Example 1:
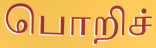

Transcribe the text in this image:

பொறிச்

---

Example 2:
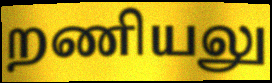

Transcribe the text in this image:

றணியலு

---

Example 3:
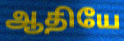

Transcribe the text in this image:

ஆதியே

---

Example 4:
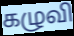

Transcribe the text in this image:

கழுவி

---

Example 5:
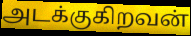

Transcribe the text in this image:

அடக்குகிறவன்